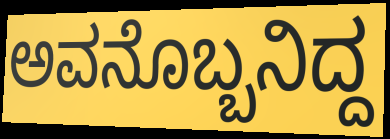
ಅವನೊಬ್ಬನಿದ್ದ